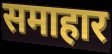
समाहार